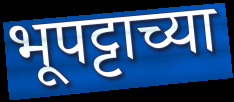
भूपट्टाच्या